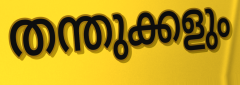
തന്തുക്കളും